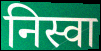
निस्वा